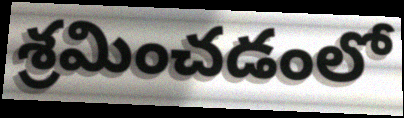
శ్రమించడంలో